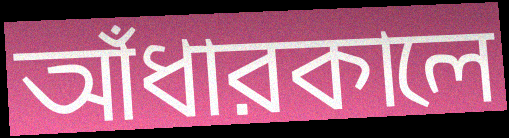
আঁধারকালে